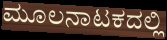
ಮೂಲನಾಟಕದಲ್ಲಿ